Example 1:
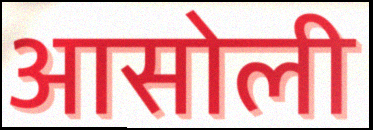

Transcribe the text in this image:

आसोली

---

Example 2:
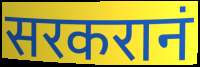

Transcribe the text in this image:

सरकरानं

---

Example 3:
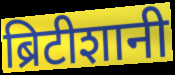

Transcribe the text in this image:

ब्रिटीशानी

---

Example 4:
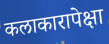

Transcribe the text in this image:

कलाकारापेक्षा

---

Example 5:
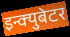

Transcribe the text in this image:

इन्क्‍युबेटर